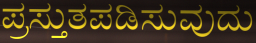
ಪ್ರಸ್ತುತಪಡಿಸುವುದು